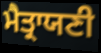
ਮੈਤ੍ਰਾਯਣੀ